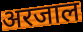
अरजाल